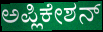
ಅಪ್ಲಿಕೇಶನ್